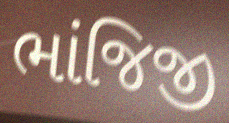
ભાંજિજી